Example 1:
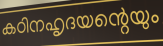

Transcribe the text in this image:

കഠിനഹൃദയന്റെയും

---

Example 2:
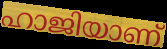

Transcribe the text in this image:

ഹാജിയാണ്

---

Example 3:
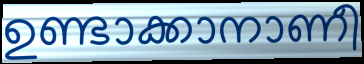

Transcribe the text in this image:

ഉണ്ടാക്കാനാണീ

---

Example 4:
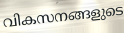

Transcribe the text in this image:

വികസനങ്ങളുടെ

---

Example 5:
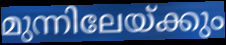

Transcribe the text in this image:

മുന്നിലേയ്ക്കും